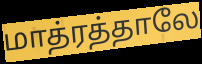
மாத்ரத்தாலே